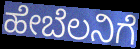
ಹೇಬೆಲನಿಗೆ